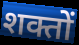
शक्तों